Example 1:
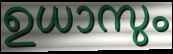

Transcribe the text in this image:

ഉധാസും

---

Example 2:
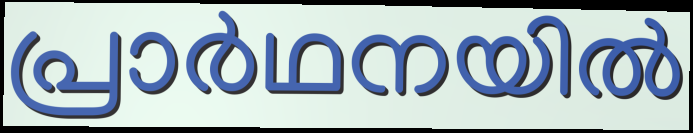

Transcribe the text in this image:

പ്രാർഥനയിൽ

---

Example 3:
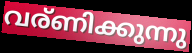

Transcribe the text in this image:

വര്ണിക്കുന്നു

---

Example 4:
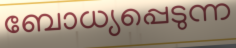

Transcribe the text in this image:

ബോധ്യപ്പെടുന്ന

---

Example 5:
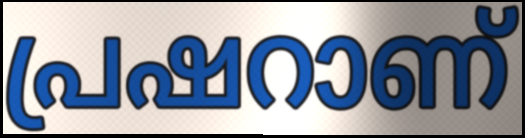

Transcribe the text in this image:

പ്രഷറാണ്